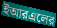
ইআরএলের